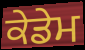
ਕੇਡੇਮ